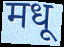
मधू